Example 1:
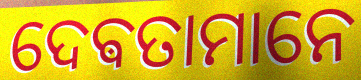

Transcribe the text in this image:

ଦେଵତାମାନେ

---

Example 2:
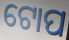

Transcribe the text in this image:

ଟୋପ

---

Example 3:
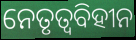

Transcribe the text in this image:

ନେତୃତ୍ୱବିହୀନ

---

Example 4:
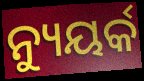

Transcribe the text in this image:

ନ୍ୟୁୟର୍କ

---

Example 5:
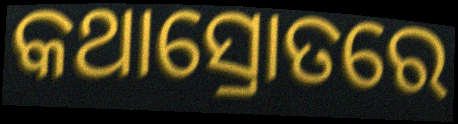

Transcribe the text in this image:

କଥାସ୍ରୋତରେ